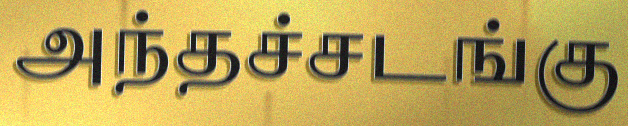
அந்தச்சடங்கு